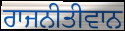
ਰਾਜਨੀਤੀਵਾਨ